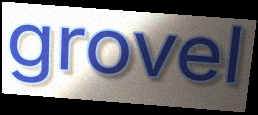
grovel